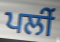
ਪਲੀਂ